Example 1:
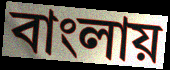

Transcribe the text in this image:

বাংলায়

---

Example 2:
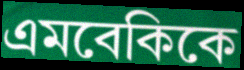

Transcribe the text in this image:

এমবেকিকে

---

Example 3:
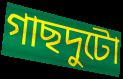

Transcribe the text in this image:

গাছদুটো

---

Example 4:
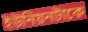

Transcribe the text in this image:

ইউনিয়নটাকে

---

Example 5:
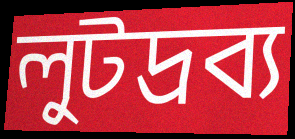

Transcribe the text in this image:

লুটদ্রব্য